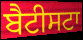
ਬੈਟੀਸਟਾ